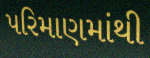
પરિમાણમાંથી